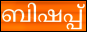
ബിഷപ്പ്